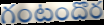
గంటందొర